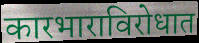
कारभाराविरोधात